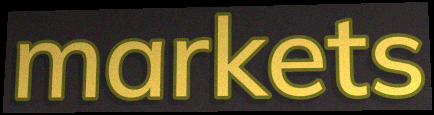
markets